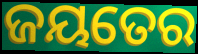
ଜୟତେର